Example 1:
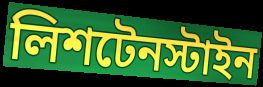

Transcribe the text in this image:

লিশটেনস্টাইন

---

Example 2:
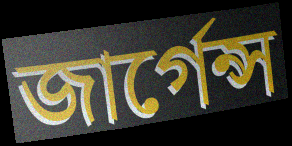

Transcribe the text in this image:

জার্গেন্স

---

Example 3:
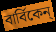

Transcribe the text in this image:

বার্বিকেন্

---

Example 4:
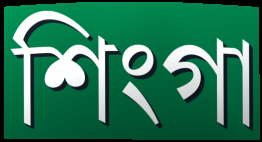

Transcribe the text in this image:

শিংগা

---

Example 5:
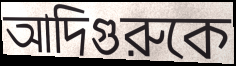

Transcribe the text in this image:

আদিগুরুকে